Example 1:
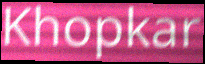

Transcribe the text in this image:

Khopkar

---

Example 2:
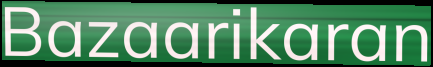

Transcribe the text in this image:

Bazaarikaran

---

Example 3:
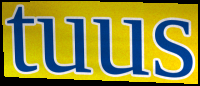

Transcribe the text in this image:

tuus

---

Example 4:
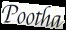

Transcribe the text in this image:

Pootha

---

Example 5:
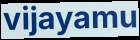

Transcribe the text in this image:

vijayamu